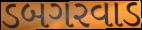
ડબગરવાડ